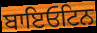
ਬਾਇਓਟਿਨ